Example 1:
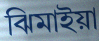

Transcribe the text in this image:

ঝিমাইয়া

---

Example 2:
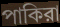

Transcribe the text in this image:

পাকিরা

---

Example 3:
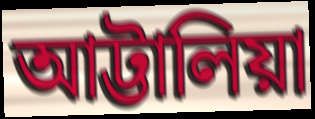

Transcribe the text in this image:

আট্টালিয়া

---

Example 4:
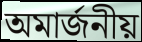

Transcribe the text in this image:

অমার্জনীয়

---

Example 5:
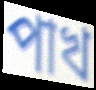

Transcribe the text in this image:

পাখ